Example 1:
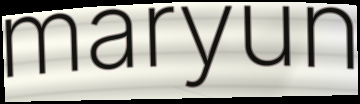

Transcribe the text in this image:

maryun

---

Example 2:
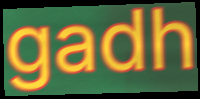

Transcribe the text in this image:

gadh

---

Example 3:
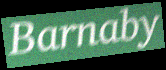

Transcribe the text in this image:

Barnaby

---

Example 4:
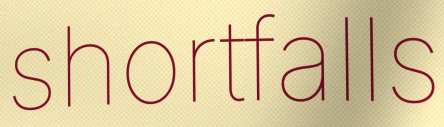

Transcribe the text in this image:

shortfalls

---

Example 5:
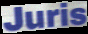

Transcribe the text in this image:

Juris